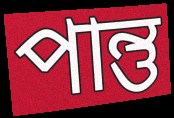
পান্তু